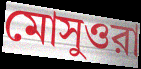
মোসুওরা